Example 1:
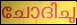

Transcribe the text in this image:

ചോദിചു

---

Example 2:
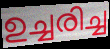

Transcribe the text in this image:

ഉച്ചരിച്ച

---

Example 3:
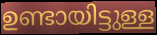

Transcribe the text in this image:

ഉണ്ടായിട്ടുള്ള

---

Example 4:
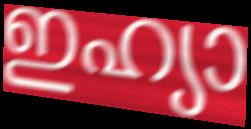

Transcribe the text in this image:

ഇഹ്യാ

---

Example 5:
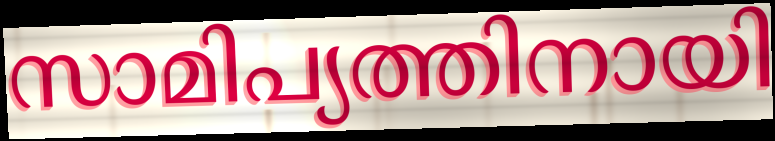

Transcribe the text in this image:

സാമിപ്യത്തിനായി